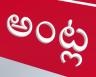
అంట్ల